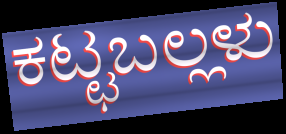
ಕಟ್ಟಬಲ್ಲಳು